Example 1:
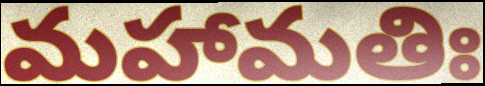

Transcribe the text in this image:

మహామతిః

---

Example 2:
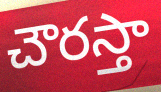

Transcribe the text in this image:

చౌరస్తా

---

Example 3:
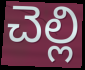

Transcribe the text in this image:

చెల్లి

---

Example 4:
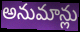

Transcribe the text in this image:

అనుమాన్లు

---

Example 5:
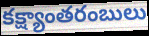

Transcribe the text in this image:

కక్ష్యాంతరంబులు